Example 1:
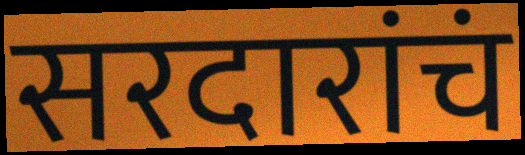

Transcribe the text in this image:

सरदारांचं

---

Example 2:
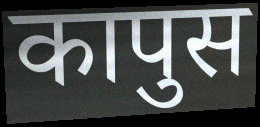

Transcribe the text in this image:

कापुस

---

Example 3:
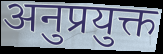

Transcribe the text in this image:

अनुप्रयुक्त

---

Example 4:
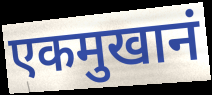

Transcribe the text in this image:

एकमुखानं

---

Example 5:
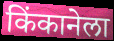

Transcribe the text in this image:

किंकानेला